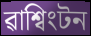
ৱাশ্বিংটন